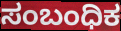
ಸಂಬಂಧಿಕ